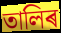
তালিৰ